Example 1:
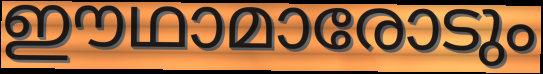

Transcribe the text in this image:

ഈഥാമാരോടും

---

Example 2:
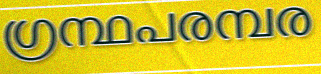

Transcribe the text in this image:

ഗ്രന്ഥപരമ്പര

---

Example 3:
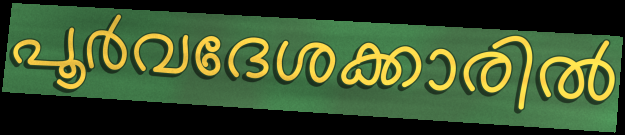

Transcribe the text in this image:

പൂർവദേശക്കാരിൽ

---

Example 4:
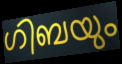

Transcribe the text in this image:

ഗിബയും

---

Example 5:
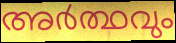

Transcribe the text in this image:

അർത്ഥവും